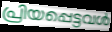
പ്രിയപ്പെട്ടവൾ